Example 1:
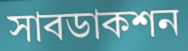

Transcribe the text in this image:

সাবডাকশন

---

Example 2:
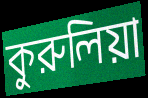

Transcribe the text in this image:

কুরুলিয়া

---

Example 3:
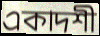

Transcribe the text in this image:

একাদশী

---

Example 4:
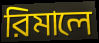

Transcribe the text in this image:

রিমালে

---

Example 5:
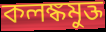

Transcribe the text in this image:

কলঙ্কমুক্ত